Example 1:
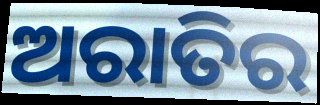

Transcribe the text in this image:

ଅରାତିର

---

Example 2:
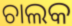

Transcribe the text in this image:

ଚାଲକ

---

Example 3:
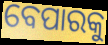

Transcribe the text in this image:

ବେପାରକୁ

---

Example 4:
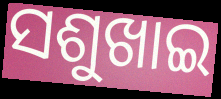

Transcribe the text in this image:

ସଶୁଖାଇ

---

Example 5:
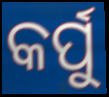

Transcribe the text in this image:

କର୍ପୁ